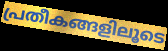
പ്രതീകങ്ങളിലൂടെ